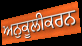
ਅਨੁਕੂਲੀਕਰਨ